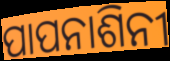
ପାପନାଶିନୀ